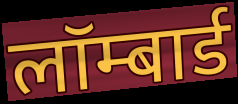
लॉम्बार्ड